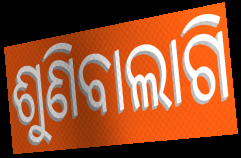
ଶୁଣିବାଲାଗି